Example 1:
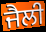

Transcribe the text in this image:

ਜੈਲੀ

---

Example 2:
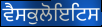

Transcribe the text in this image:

ਵੈਸਕੁਲੋਇਟਿਸ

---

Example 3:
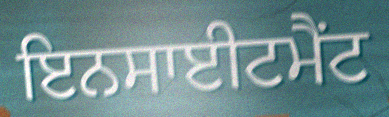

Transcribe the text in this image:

ਇਨਸਾਈਟਮੈਂਟ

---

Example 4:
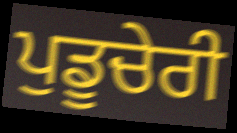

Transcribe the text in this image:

ਪੁਡੂਚੇਰੀ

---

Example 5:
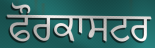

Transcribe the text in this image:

ਫੌਰਕਾਸਟਰ